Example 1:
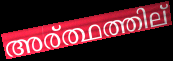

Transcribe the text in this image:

അര്ത്ഥത്തില്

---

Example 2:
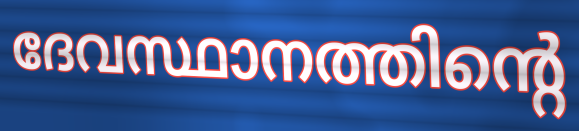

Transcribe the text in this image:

ദേവസ്ഥാനത്തിന്റെ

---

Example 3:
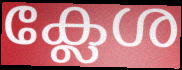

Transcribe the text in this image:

ക്ലേശ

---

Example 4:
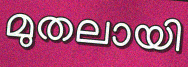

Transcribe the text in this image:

മുതലായി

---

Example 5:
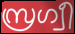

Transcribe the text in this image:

സ്രഗ്വീ